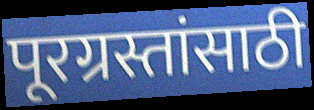
पूरग्रस्तांसाठी